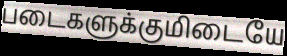
படைகளுக்குமிடையே